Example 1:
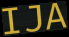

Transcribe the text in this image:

IJA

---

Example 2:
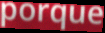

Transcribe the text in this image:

porque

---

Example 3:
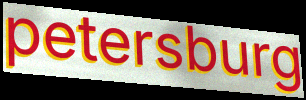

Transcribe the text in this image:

petersburg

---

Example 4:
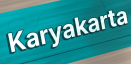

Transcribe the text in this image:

Karyakarta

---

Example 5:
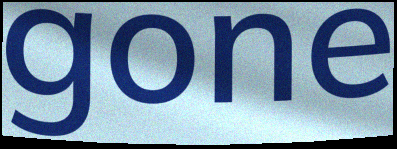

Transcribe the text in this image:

gone